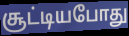
சூட்டியபோது